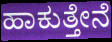
ಹಾಕುತ್ತೇನೆ